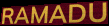
RAMADU